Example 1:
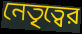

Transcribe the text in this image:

নেতৃত্বের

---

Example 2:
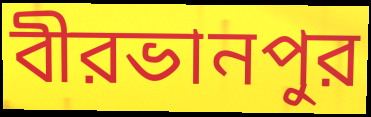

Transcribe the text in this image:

বীরভানপুর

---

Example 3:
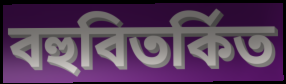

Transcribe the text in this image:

বহুবিতর্কিত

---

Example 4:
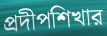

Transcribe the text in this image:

প্রদীপশিখার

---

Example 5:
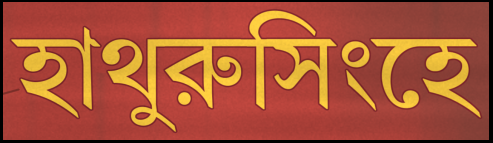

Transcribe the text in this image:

হাথুরুসিংহে